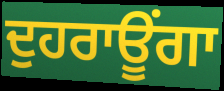
ਦੁਹਰਾਊਂਗਾ